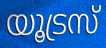
യൂട്രസ്